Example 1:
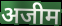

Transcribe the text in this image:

अजीम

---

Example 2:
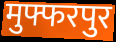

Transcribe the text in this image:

मुफ्फरपुर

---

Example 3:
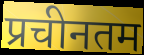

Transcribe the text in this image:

प्रचीनतम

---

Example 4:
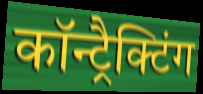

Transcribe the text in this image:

कॉन्ट्रैक्टिंग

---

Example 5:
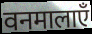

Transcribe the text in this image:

वनमालाएँ